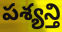
పశ్యన్తి